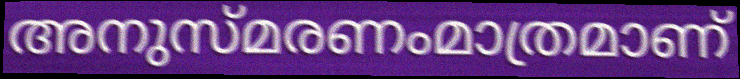
അനുസ്മരണംമാത്രമാണ്